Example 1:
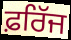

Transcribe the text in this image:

ਫ਼ਰਿੱਜ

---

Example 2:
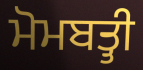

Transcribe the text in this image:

ਮੋਮਬਤ੍ਤੀ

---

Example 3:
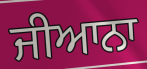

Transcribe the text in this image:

ਜੀਆਨਾ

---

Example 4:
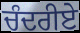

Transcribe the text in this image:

ਚੰਦਰੀਏ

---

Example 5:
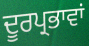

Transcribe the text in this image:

ਦੂਰਪ੍ਰਭਾਵਾਂ